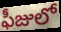
ఫీజులో